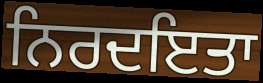
ਨਿਰਦਇਤਾ